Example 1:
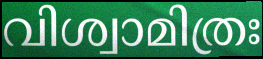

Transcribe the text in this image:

വിശ്വാമിത്രഃ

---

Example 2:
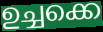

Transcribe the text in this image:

ഉച്ചക്കെ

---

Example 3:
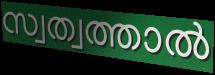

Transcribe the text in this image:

സ്വത്വത്താൽ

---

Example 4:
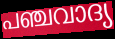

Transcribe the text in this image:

പഞ്ചവാദ്യ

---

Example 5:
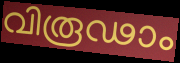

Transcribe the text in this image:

വിരൂഢാം